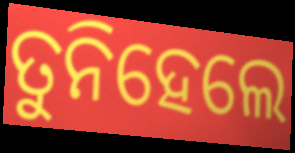
ତୁନିହେଲେ